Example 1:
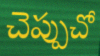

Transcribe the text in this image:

చెప్పుచో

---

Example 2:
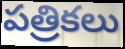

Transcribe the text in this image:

పత్రికలు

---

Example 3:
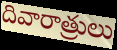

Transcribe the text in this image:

దివారాత్రులు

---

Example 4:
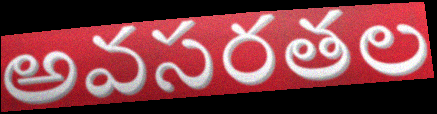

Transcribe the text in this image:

అవసరతల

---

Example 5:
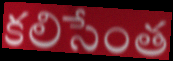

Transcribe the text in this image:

కలిసేంత